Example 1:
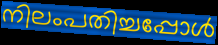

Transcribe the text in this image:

നിലംപതിച്ചപ്പോൾ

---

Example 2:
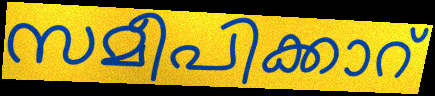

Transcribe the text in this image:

സമീപിക്കാറ്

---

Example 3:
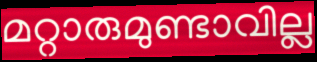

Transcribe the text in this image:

മറ്റാരുമുണ്ടാവില്ല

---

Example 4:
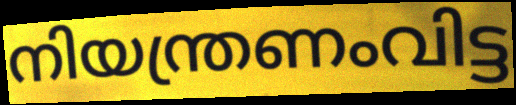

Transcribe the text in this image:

നിയന്ത്രണംവിട്ട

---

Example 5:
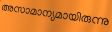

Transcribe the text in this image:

അസാമാന്യമായിരുന്നു